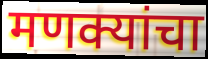
मणक्यांचा